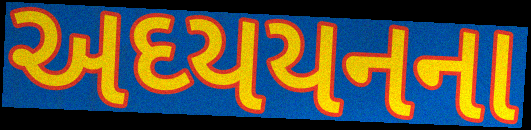
અઘ્યયનના